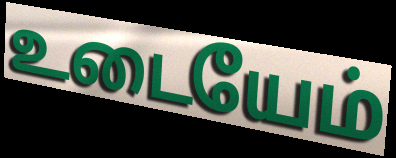
உடையேம்